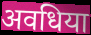
अवधिया